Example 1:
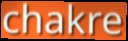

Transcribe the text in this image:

chakre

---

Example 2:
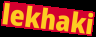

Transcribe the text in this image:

lekhaki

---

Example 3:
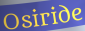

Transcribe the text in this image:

Osiride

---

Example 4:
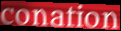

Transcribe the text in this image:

conation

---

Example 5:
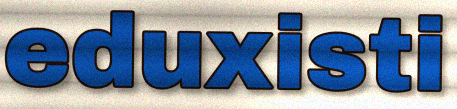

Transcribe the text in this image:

eduxisti